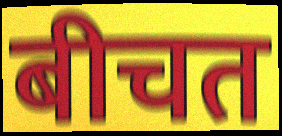
बीचत